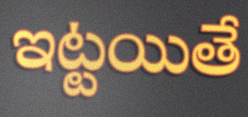
ఇట్టయితే